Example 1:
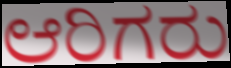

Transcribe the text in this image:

ಆರಿಗರು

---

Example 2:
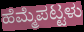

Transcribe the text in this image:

ಹೆಮ್ಮೆಪಟ್ಟಳು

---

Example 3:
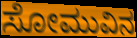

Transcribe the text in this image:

ಸೋಮುವಿನ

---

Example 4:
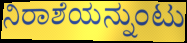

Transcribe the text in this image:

ನಿರಾಶೆಯನ್ನುಂಟು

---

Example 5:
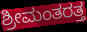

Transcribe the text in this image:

ಶ್ರೀಮಂತರತ್ತ